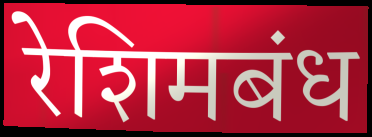
रेशिमबंध